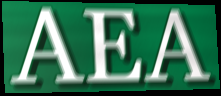
AEA